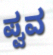
ಪ್ವವ